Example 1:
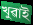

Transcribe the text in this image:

খুৱাই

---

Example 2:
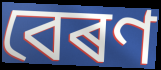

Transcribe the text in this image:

বেৰণ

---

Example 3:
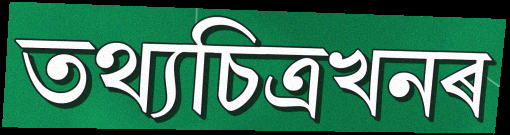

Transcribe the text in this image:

তথ্যচিত্ৰখনৰ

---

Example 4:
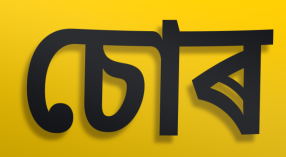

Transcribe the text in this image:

চোৰ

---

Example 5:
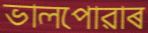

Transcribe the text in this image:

ভালপোৱাৰ